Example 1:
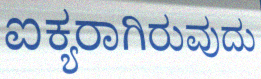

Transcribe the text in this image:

ಐಕ್ಯರಾಗಿರುವುದು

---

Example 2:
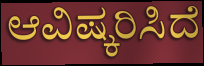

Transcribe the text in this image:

ಆವಿಷ್ಕರಿಸಿದೆ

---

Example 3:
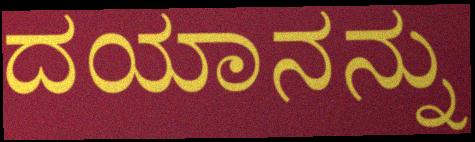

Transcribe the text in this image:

ದಯಾನನ್ನು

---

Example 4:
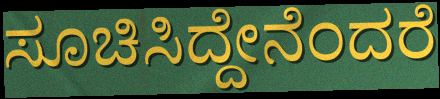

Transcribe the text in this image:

ಸೂಚಿಸಿದ್ದೇನೆಂದರೆ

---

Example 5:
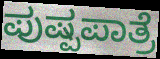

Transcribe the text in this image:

ಪುಷ್ಪಪಾತ್ರೆ